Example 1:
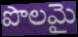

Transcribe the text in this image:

పొలమై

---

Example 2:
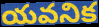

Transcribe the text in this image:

యవనిక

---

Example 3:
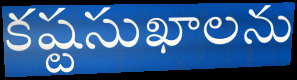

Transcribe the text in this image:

కష్టసుఖాలను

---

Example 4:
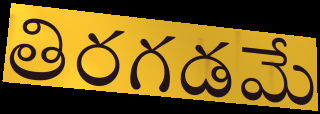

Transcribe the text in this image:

తిరగడమే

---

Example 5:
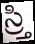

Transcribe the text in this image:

స్ర్తి